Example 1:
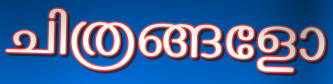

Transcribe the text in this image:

ചിത്രങ്ങളോ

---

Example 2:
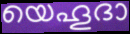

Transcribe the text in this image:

യെഹൂദാ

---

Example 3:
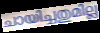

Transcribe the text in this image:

ചായിച്ചതുമില്ല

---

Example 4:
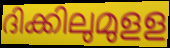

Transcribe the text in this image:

ദിക്കിലുമുളള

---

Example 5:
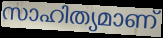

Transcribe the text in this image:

സാഹിത്യമാണ്